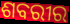
ଶବରୀର